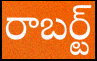
రాబర్ట్